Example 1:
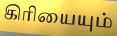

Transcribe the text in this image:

கிரியையும்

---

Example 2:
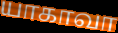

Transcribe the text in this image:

யாகாவா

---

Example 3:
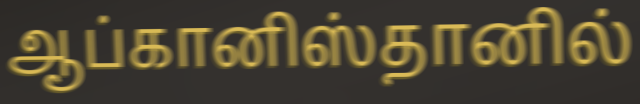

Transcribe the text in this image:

ஆப்கானிஸ்தானில்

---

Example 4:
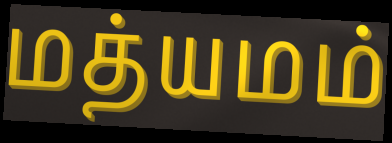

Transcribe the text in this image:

மத்யமம்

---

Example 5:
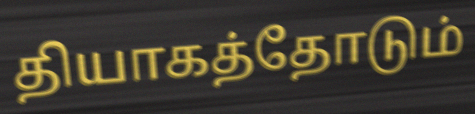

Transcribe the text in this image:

தியாகத்தோடும்